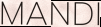
MANDI